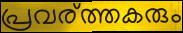
പ്രവര്ത്തകരും